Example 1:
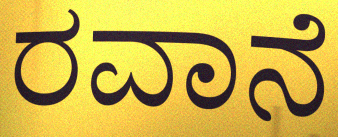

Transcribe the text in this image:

ರವಾನೆ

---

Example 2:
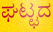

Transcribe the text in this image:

ಘಟ್ಟದ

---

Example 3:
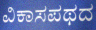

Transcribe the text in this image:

ವಿಕಾಸಪಥದ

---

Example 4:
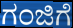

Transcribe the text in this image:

ಗಂಜಿಗೆ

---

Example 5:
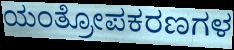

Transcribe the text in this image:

ಯಂತ್ರೋಪಕರಣಗಳ